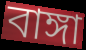
বাঙ্গা